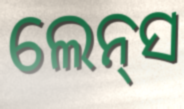
ଲେନ୍‍ସ